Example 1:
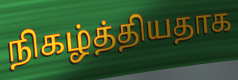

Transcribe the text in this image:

நிகழ்த்தியதாக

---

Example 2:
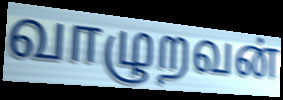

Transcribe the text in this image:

வாழுறவன்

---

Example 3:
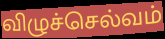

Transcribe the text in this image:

விழுச்செல்வம்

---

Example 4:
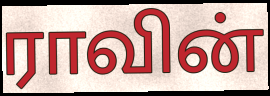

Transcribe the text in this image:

ராவின்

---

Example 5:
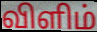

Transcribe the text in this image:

விளிம்